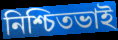
নিশ্চিতভাই